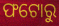
ଫଟୋରୁ